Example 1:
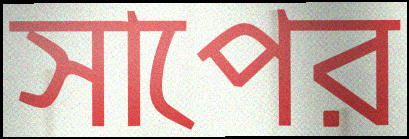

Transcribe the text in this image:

সাপের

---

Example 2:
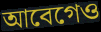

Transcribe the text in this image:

আবেগেও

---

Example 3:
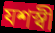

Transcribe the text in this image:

যশস্বী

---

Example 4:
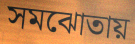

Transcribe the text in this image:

সমঝোতায়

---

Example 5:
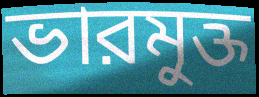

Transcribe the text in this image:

ভারমুক্ত